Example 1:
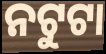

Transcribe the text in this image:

ନଟୁଟା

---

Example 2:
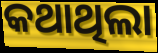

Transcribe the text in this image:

କଥାଥିଲା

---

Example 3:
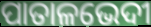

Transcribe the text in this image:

ପାତାଳଭେଦୀ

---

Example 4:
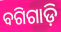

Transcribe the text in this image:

ବଗିଗାଡ଼ି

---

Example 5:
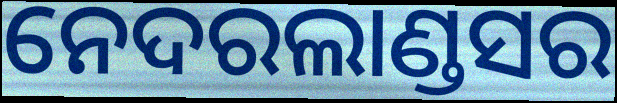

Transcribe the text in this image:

ନେଦରଲାଣ୍ଡସର